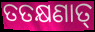
ତତକ୍ଷଣାତ୍